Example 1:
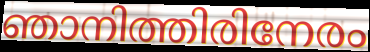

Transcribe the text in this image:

ഞാനിത്തിരിനേരം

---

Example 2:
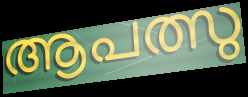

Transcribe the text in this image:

ആപത്സു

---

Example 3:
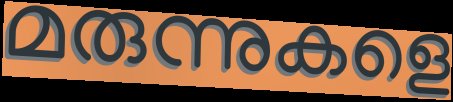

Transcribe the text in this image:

മരുന്നുകളെ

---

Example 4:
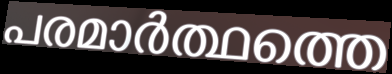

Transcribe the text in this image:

പരമാർത്ഥത്തെ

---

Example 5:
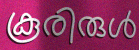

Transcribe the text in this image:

കൂരിരുൾ